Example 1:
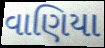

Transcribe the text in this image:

વાણિયા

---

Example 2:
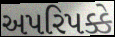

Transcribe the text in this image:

અપરિપક્કે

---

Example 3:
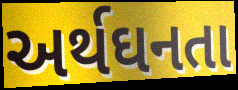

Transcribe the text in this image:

અર્થઘનતા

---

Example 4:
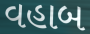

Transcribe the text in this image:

વહાબ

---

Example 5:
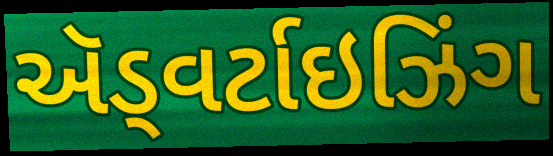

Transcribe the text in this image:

ઍડ્વર્ટાઇઝિંગ